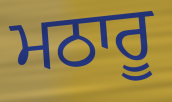
ਮਠਾਰੂ